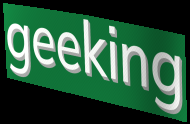
geeking